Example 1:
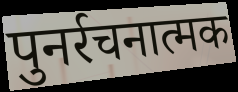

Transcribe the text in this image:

पुनर्रचनात्मक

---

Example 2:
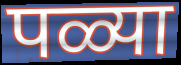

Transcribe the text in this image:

पळ्या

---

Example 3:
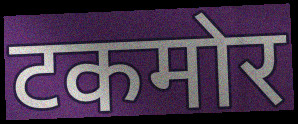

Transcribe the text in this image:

टकमोर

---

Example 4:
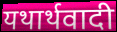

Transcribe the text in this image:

यथार्थवादी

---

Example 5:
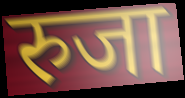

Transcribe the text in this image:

रुजा